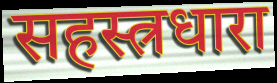
सहस्त्रधारा